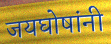
जयघोषांनी